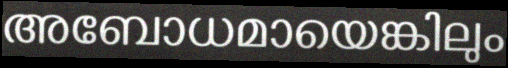
അബോധമായെങ്കിലും